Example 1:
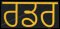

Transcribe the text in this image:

ਰਡਰ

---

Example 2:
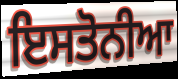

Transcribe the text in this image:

ਇਸਤੋਨੀਆ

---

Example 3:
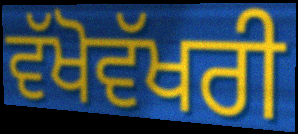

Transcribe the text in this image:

ਵੱਖੋਵੱਖਰੀ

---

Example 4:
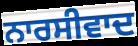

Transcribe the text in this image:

ਨਾਰਸੀਵਾਦ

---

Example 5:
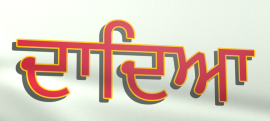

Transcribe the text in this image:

ਦਾਦਿਆ